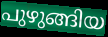
പുഴുങ്ങിയ